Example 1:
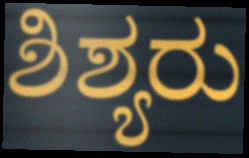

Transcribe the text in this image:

ಶಿಶ್ಯರು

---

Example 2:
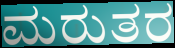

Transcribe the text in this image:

ಮರುತರ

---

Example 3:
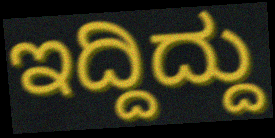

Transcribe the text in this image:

ಇದ್ದಿದ್ದು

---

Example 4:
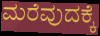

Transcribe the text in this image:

ಮರೆವುದಕ್ಕೆ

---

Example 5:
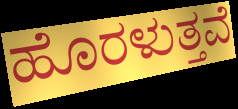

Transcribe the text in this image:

ಹೊರಳುತ್ತವೆ